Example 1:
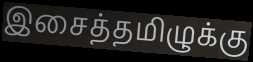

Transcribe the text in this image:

இசைத்தமிழுக்கு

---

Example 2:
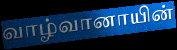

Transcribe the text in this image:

வாழ்வானாயின்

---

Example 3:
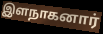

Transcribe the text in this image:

இளநாகனார்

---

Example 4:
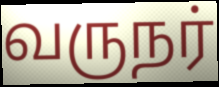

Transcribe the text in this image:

வருநர்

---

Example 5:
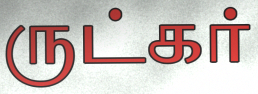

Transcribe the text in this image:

ருட்கர்